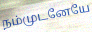
நம்முடனேயே